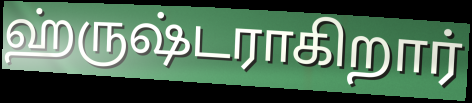
ஹ்ருஷ்டராகிறார்